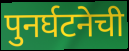
पुनर्घटनेची